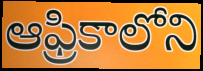
ఆఫ్రికాలోని